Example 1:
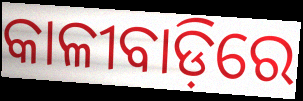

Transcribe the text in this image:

କାଳୀବାଡ଼ିରେ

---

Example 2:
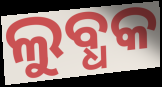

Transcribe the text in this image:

ଲୁବ୍ଧକ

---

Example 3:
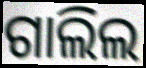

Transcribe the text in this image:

ଗାଲିଲ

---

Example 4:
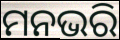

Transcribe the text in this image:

ମନଭରି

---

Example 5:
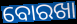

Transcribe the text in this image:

ବୋରଖା